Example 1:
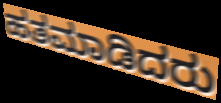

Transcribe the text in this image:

ಹತಮಾಡಿದರು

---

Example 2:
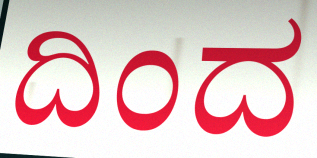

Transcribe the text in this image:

ದಿಂದ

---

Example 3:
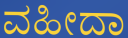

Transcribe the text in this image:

ವಹೀದಾ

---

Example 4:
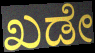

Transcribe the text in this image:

ಖಡೇ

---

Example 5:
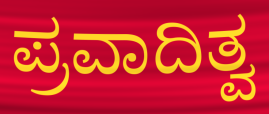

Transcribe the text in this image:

ಪ್ರವಾದಿತ್ವ